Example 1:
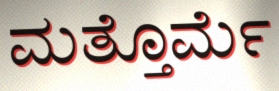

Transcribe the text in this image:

ಮತ್ತೊರ್ಮೆ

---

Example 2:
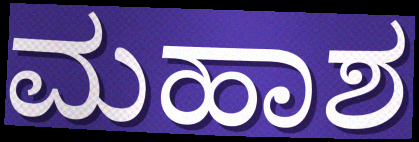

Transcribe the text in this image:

ಮಹಾಶ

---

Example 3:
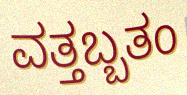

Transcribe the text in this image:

ವತ್ತಬ್ಬತಂ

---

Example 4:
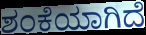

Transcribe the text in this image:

ಶಂಕೆಯಾಗಿದೆ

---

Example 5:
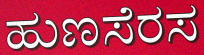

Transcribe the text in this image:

ಹುಣಸೆರಸ